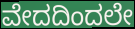
ವೇದದಿಂದಲೇ